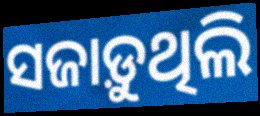
ସଜାଡ଼ୁଥିଲି